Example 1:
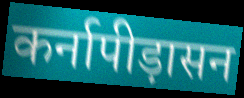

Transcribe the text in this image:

कर्नापीड़ासन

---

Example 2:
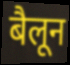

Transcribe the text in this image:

बैलून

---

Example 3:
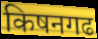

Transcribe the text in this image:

किषनगढ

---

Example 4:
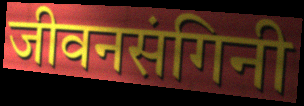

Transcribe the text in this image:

जीवनसंगिनी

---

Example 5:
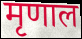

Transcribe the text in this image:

मृणाल